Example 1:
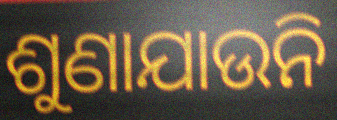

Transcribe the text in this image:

ଶୁଣାଯାଉନି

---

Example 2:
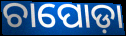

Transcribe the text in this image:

ଚାପୋଡ଼ା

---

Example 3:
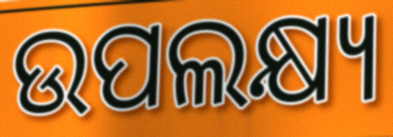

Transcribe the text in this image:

ଉପଲକ୍ଷ୍ୟ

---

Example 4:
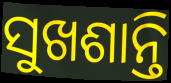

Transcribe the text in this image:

ସୁଖଶାନ୍ତି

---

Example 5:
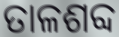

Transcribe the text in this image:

ତାଳଶବ୍ଦ